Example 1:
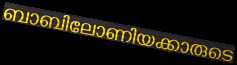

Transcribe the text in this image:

ബാബിലോണിയക്കാരുടെ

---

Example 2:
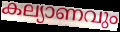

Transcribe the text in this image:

കല്യാണവും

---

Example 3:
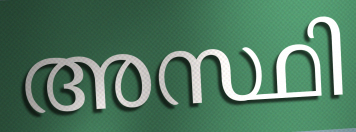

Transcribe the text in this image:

അസ്ഥി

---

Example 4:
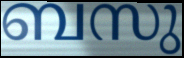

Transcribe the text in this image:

ബസു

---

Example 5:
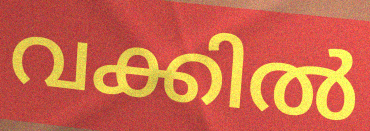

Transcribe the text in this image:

വക്കിൽ